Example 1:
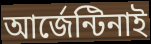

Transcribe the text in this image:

আর্জেন্টিনাই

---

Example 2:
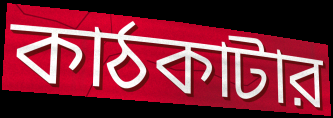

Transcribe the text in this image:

কাঠকাটার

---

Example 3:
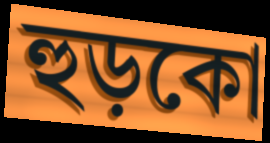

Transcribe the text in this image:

হুড়কো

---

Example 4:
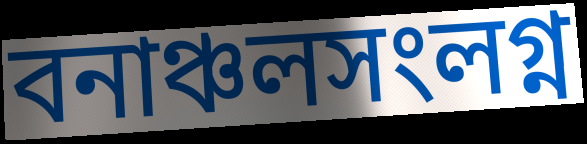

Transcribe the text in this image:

বনাঞ্চলসংলগ্ন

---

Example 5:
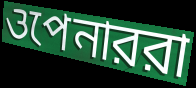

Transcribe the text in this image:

ওপেনাররা